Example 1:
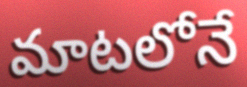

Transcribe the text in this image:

మాటలోనే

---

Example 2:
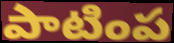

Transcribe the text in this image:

పాటింప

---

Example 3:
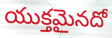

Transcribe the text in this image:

యుక్తమైనదో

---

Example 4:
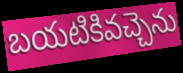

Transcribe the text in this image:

బయటికివచ్చెను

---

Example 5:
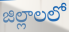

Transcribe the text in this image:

జిల్లాలలో